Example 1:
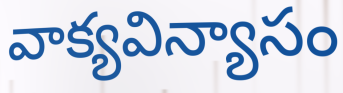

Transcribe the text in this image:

వాక్యవిన్యాసం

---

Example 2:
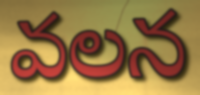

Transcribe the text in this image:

వలన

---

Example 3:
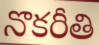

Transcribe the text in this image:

నొకరీతి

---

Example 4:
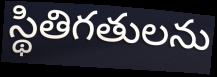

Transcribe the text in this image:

స్థితిగతులను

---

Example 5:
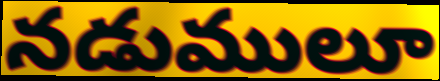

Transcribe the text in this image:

నడుములూ